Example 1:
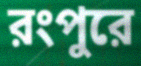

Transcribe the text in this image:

রংপুরে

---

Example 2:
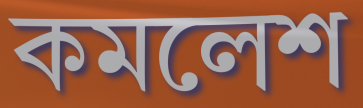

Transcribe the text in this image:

কমলেশ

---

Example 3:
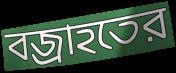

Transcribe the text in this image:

বজ্রাহতের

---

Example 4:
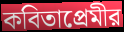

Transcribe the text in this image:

কবিতাপ্রেমীর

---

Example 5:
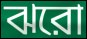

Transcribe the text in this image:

ঝরো